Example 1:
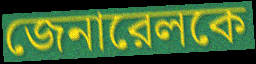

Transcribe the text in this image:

জেনারেলকে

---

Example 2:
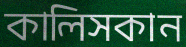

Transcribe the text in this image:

কালিসকান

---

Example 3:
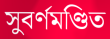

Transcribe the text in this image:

সুবর্ণমণ্ডিত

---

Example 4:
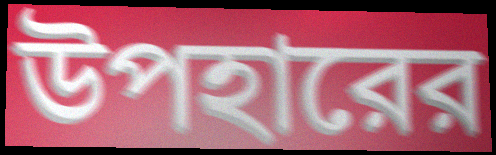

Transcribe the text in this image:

উপহারের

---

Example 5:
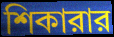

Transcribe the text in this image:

শিকারার